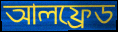
আলফ্ৰেড